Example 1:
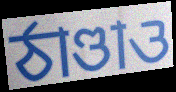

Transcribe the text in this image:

ঠাণ্ডাও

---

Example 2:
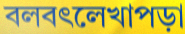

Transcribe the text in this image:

বলবৎলেখাপড়া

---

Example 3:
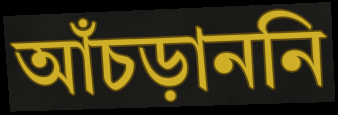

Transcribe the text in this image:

আঁচড়াননি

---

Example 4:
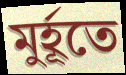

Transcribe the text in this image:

মুর্হূতে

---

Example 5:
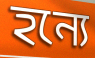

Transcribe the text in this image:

হন্যে